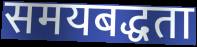
समयबद्धता